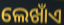
ଲେଖାଁଏ